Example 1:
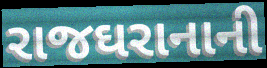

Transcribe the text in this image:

રાજઘરાનાની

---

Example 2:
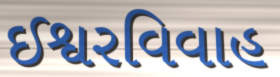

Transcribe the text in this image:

ઈશ્વરવિવાહ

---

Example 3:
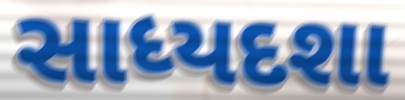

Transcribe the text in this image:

સાધ્યદશા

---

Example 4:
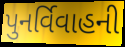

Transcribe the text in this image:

પુનર્વિવાહની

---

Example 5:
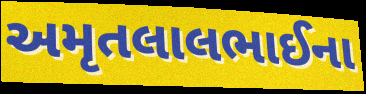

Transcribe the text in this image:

અમૃતલાલભાઈના